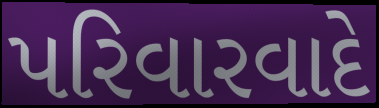
પરિવારવાદે